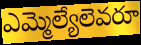
ఎమ్మెల్యేలెవరూ